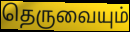
தெருவையும்